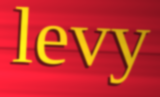
levy